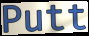
Putt